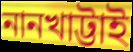
নানখাট্টাই